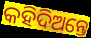
କହିଦିଅନ୍ତେ